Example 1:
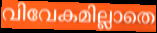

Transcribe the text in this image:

വിവേകമില്ലാതെ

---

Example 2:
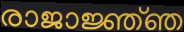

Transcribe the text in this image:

രാജാജ്ഞ്ഞ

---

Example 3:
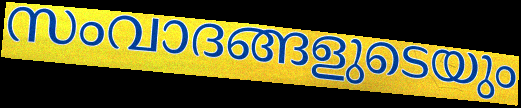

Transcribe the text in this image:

സംവാദങ്ങളുടെയും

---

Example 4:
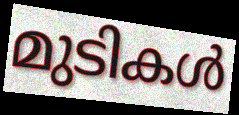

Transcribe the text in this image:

മുടികൾ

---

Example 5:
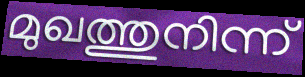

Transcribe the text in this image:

മുഖത്തുനിന്ന്